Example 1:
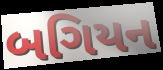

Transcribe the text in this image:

બગિયન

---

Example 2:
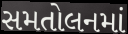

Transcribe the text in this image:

સમતોલનમાં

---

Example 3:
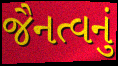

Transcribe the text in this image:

જૈનત્વનું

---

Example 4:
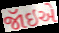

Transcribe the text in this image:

જૉઇએ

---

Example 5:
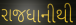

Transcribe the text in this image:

રાજધાનીથી